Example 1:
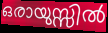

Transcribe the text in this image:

ഒരായുസ്സിൽ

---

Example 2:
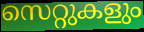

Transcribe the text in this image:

സെറ്റുകളും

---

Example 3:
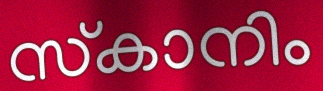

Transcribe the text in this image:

സ്‌കാനിം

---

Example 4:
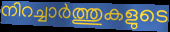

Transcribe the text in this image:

നിറച്ചാർത്തുകളുടെ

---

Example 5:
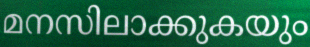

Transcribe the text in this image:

മനസിലാക്കുകയും